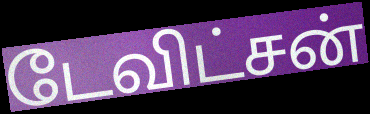
டேவிட்சன்